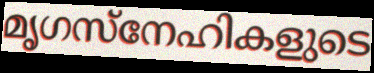
മൃഗസ്നേഹികളുടെ